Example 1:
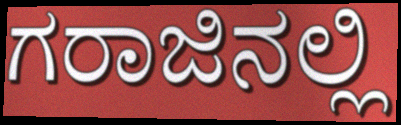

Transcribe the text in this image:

ಗರಾಜಿನಲ್ಲಿ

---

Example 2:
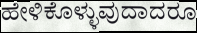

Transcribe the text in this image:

ಹೇಳಿಕೊಳ್ಳುವುದಾದರೂ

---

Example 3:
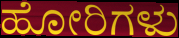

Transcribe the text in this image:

ಹೋರಿಗಳು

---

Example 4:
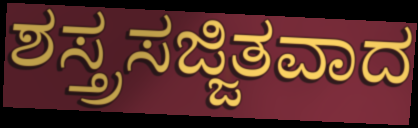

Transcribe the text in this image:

ಶಸ್ತ್ರಸಜ್ಜಿತವಾದ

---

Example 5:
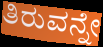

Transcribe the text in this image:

ತಿರುವನ್ನೇ